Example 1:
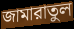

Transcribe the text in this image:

জামারাতুল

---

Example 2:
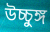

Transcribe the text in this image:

উচ্চুঙ্গ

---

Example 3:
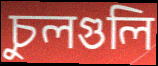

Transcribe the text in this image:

চুলগুলি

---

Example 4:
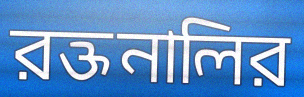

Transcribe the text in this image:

রক্তনালির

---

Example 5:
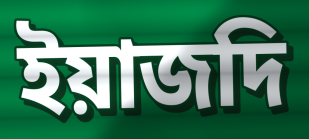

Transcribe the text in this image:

ইয়াজদি